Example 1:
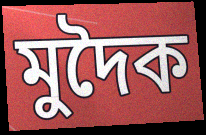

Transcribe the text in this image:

মুদৈক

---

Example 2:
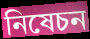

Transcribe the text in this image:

নিষেচন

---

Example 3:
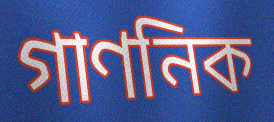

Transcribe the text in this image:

গাণনিক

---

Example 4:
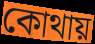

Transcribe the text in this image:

কোথায়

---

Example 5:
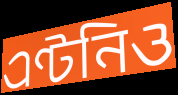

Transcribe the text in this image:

এণ্টনিও